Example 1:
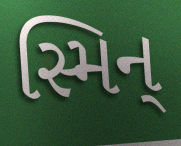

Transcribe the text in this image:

સ્મિન્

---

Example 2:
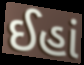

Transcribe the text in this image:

ઈહાં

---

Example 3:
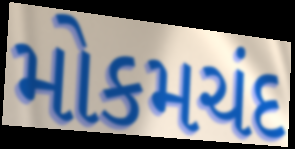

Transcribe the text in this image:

મોકમચંદ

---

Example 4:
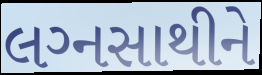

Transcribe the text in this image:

લગ્‍નસાથીને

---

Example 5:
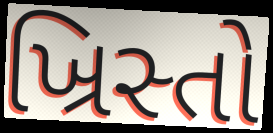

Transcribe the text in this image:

ખ્રિસ્તો